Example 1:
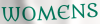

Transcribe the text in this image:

WOMENS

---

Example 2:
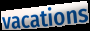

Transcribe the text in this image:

vacations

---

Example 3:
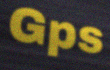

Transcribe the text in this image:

Gps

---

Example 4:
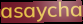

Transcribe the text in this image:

asaycha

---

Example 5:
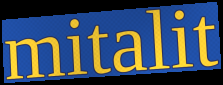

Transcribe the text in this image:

mitalit